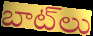
బాట్‌లు